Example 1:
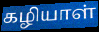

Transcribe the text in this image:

கழியாள்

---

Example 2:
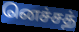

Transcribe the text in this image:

னெச்சத்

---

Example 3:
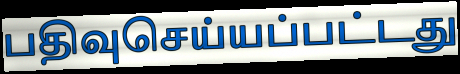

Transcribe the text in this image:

பதிவுசெய்யப்பட்டது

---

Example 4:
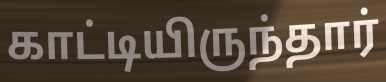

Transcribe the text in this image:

காட்டியிருந்தார்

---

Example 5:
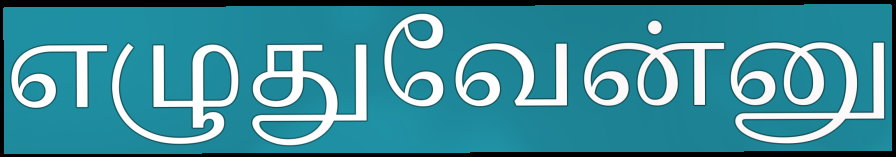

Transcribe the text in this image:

எழுதுவேன்னு